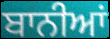
ਬਾਨੀਆਂ